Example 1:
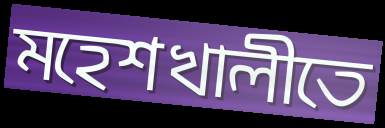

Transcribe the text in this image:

মহেশখালীতে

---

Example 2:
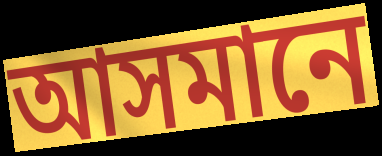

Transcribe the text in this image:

আসমানে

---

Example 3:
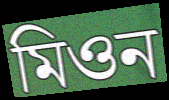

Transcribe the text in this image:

মিওন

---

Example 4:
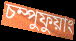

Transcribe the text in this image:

চম্পুফুয়াং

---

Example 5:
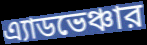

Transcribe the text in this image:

এ্যাডভেঞ্চার